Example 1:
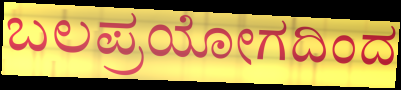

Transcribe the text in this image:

ಬಲಪ್ರಯೋಗದಿಂದ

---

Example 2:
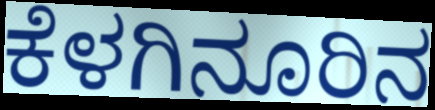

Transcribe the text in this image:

ಕೆಳಗಿನೂರಿನ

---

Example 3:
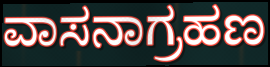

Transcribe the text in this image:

ವಾಸನಾಗ್ರಹಣ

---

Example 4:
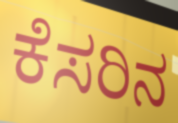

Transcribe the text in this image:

ಕೆಸರಿನ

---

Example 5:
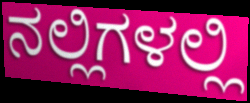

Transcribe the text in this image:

ನಲ್ಲಿಗಳಲ್ಲಿ